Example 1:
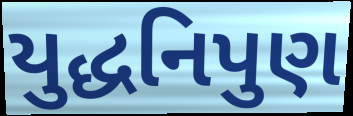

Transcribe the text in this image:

યુદ્ધનિપુણ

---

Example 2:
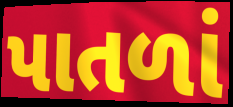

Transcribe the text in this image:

પાતળાં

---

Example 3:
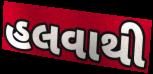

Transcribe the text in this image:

હલવાથી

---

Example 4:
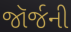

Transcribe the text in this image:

જૉર્જની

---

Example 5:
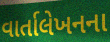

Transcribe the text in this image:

વાર્તાલેખનના